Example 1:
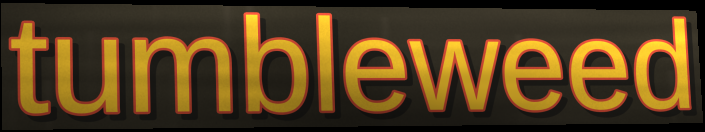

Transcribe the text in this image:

tumbleweed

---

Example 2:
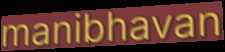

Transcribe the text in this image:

manibhavan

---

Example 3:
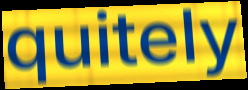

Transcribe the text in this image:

quitely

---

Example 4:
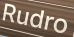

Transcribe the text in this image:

Rudro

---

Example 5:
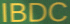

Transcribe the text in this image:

IBDC